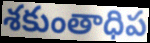
శకుంతాధిప